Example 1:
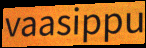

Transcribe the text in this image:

vaasippu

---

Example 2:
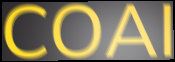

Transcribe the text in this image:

COAI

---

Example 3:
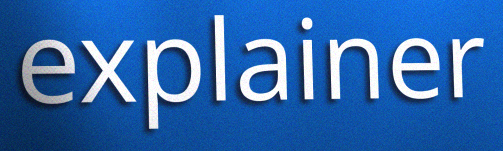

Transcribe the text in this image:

explainer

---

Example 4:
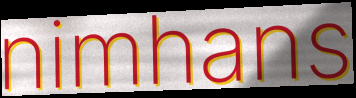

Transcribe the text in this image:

nimhans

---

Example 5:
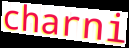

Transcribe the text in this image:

charni